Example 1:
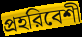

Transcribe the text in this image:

প্রহরিবেশী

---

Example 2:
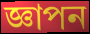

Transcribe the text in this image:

জ্ঞাপন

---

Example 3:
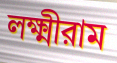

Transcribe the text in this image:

লক্ষ্মীরাম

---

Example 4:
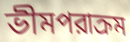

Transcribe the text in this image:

ভীমপরাক্রম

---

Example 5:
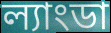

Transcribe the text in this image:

ল্যাংডা